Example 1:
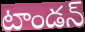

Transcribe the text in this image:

టాండన్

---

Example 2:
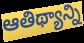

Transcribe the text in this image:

ఆతిథ్యాన్ని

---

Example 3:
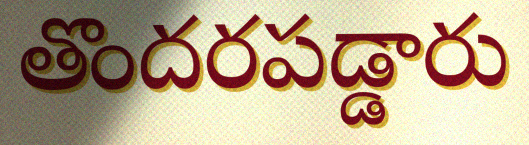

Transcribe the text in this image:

తొందరపడ్డారు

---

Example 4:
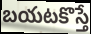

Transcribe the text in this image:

బయటకొస్తే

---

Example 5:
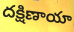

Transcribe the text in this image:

దక్షిణాయా